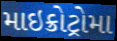
માઇક્રોટ્રોમા